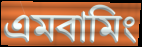
এমবামিং